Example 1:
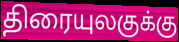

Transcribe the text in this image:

திரையுலகுக்கு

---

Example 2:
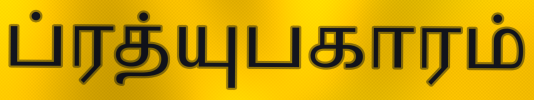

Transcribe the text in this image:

ப்ரத்யுபகாரம்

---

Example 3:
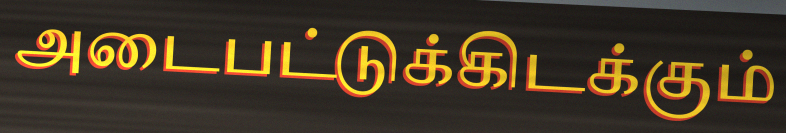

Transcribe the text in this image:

அடைபட்டுக்கிடக்கும்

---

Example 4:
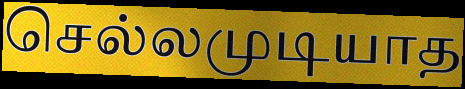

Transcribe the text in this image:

செல்லமுடியாத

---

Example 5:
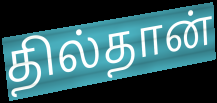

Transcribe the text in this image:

தில்தான்